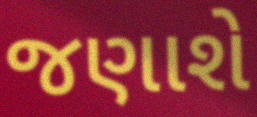
જણાશે